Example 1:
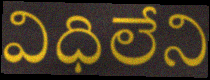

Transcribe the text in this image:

విధిలేని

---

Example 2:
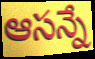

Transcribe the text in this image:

ఆసన్నే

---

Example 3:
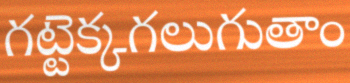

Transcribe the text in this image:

గట్టెక్కగలుగుతాం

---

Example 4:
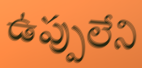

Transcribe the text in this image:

ఉప్పులేని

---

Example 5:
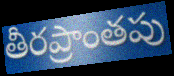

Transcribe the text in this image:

తీరప్రాంతపు